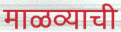
माळव्याची